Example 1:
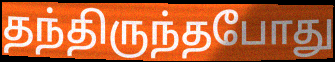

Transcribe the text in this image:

தந்திருந்தபோது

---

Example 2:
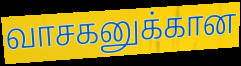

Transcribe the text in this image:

வாசகனுக்கான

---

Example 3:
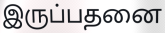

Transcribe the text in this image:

இருப்பதனை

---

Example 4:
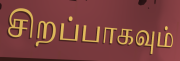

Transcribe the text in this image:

சிறப்பாகவும்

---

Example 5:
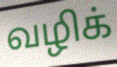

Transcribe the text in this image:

வழிக்